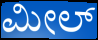
ಮೀಲ್